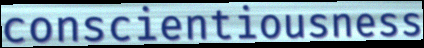
conscientiousness